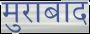
मुराबाद